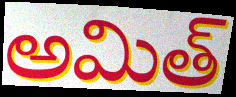
అమిత్